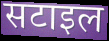
सटाइल